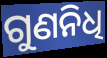
ଗୁଣନିଧି